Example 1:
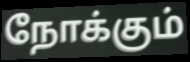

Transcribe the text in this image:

நோக்கும்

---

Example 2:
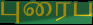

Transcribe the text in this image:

புரைப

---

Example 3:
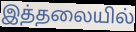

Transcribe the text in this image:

இத்தலையில்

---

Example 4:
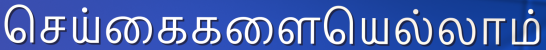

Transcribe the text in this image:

செய்கைகளையெல்லாம்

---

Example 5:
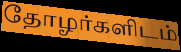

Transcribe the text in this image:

தோழர்களிடம்